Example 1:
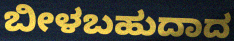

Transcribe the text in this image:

ಬೀಳಬಹುದಾದ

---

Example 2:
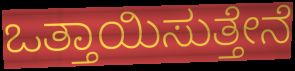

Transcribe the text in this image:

ಒತ್ತಾಯಿಸುತ್ತೇನೆ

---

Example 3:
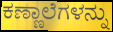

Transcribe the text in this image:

ಕಣ್ಣಾಲೆಗಳನ್ನು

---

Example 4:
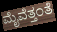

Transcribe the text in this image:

ಮೈವೆತ್ತಂತೆ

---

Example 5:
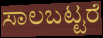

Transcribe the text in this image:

ಸಾಲಬಟ್ಟರೆ